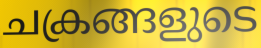
ചക്രങ്ങളുടെ